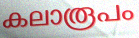
കലാരൂപം